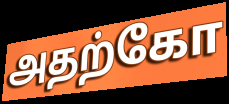
அதற்கோ